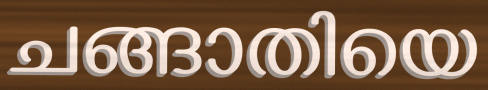
ചങ്ങാതിയെ